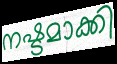
നഷ്ടമാക്കി